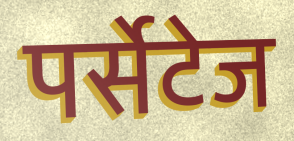
पर्सेटेज